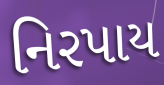
નિરપાય